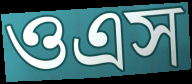
ওএস